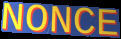
NONCE